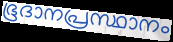
ഭൂദാനപ്രസ്ഥാനം